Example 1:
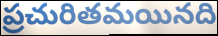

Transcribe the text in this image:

ప్రచురితమయినది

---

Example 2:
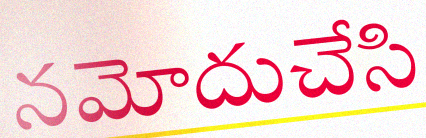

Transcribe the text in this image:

నమోదుచేసి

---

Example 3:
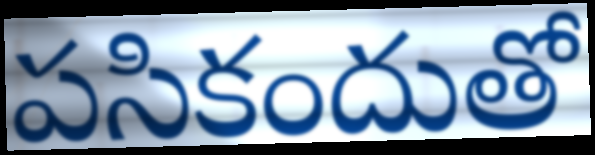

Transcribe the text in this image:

పసికందుతో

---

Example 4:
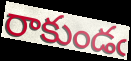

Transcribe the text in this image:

రాకుండఁ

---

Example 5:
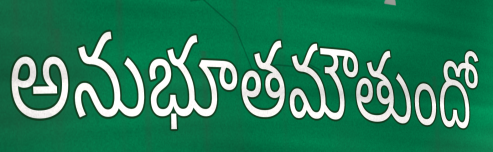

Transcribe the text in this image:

అనుభూతమౌతుందో